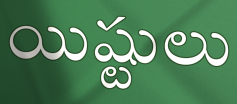
యిష్టులు